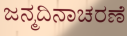
ಜನ್ಮದಿನಾಚರಣೆ